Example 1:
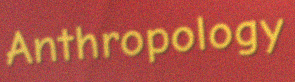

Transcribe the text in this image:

Anthropology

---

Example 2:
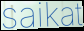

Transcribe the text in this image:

saikat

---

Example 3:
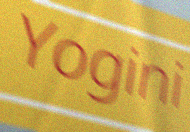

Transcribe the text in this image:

Yogini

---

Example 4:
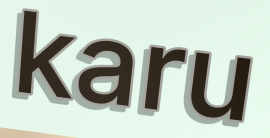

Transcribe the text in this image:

karu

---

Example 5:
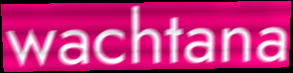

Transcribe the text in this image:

wachtana